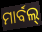
ମାର୍ବଲ୍